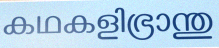
കഥകളിഭ്രാന്തു